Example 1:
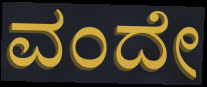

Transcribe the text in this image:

ವಂದೇ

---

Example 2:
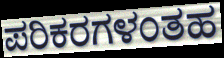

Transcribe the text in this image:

ಪರಿಕರಗಳಂತಹ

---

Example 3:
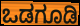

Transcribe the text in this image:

ಒಡಗೂಡಿ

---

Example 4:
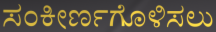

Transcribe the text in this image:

ಸಂಕೀರ್ಣಗೊಳಿಸಲು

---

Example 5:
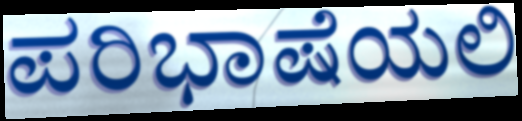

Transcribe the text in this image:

ಪರಿಭಾಷೆಯಲಿ